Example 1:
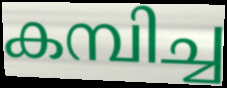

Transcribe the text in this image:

കമ്പിച്ച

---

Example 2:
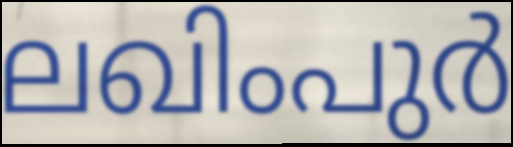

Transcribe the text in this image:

ലഖിംപുർ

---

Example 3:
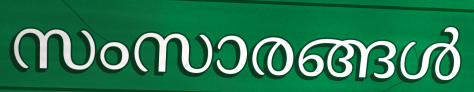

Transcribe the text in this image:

സംസാരങ്ങൾ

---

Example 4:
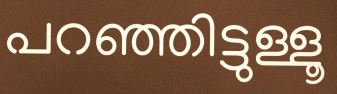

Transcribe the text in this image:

പറഞ്ഞിട്ടുള്ളൂ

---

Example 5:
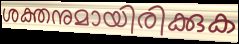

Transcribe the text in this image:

ശക്തനുമായിരിക്കുക